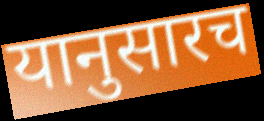
यानुसारच